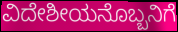
ವಿದೇಶೀಯನೊಬ್ಬನಿಗೆ